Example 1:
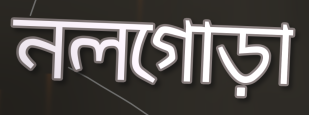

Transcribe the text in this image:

নলগোড়া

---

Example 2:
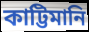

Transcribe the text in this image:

কাট্টিমানি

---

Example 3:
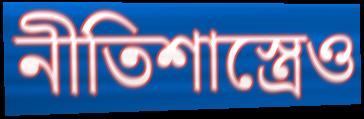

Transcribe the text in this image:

নীতিশাস্ত্রেও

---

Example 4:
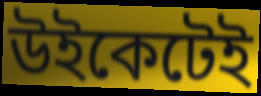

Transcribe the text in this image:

উইকেটেই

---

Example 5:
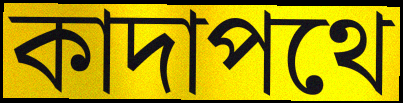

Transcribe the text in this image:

কাদাপথে